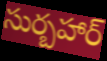
సుర్బహార్